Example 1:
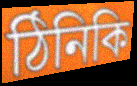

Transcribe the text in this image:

ঠিনিকি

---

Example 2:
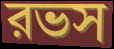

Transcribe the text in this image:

রভস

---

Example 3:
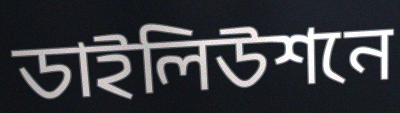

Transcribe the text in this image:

ডাইলিউশনে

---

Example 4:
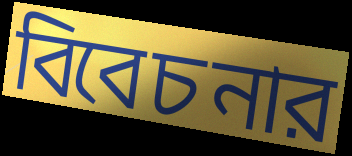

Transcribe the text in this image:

বিবেচনার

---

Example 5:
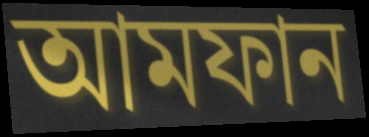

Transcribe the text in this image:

আমফান